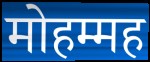
मोहम्मह